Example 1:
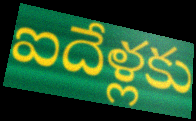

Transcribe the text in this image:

ఐదేళ్లకు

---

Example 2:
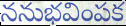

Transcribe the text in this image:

ననుభవింపక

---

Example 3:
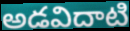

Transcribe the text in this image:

అడవిదాటి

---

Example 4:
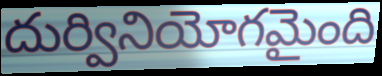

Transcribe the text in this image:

దుర్వినియోగమైంది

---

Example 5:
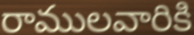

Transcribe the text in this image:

రాములవారికి